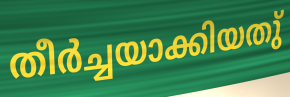
തീർച്ചയാക്കിയതു്